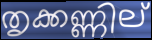
തൃക്കണ്ണില്